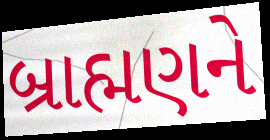
બ્રાહ્મણને